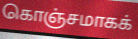
கொஞ்சமாகக்